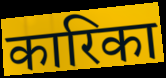
कारिका